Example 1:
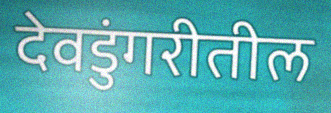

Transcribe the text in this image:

देवडुंगरीतील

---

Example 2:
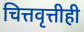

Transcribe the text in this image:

चित्तवृत्तीही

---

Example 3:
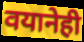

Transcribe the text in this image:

वयानेही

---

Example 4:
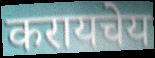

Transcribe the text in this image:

करायचेय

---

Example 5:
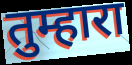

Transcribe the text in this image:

तुम्हारा